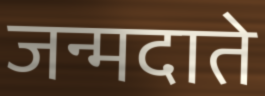
जन्मदाते